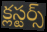
క్లస్టర్స్